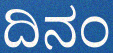
ದಿನಂ